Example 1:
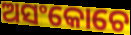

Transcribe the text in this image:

ଅସଂକୋଚେ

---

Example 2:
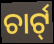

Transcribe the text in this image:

ଚାର୍ଟ୍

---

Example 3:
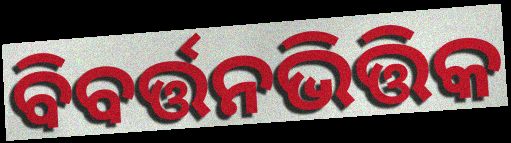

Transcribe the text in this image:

ବିବର୍ତ୍ତନଭିତ୍ତିକ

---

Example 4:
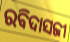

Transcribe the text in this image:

ରବିଦାସଜୀ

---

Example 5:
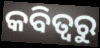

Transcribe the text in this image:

କବିତ୍ଵରୁ